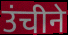
उंचीने